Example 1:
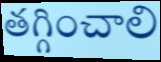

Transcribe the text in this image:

తగ్గించాలి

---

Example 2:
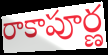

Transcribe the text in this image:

రాకాపూర్ణ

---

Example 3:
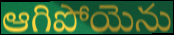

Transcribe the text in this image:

ఆగిపోయెను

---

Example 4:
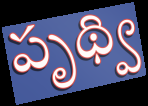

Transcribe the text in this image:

పృథ్వి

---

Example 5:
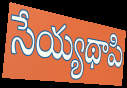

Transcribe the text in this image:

సేయ్యథాపి